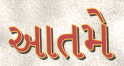
આતમે